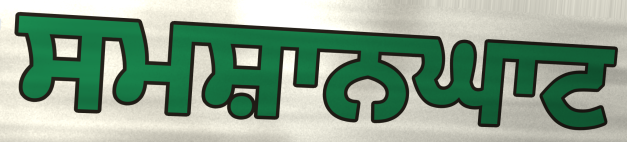
ਸਮਸ਼ਾਨਘਾਟ